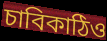
চাবিকাঠিও